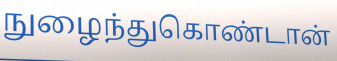
நுழைந்துகொண்டான்